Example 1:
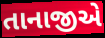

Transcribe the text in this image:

તાનાજીએ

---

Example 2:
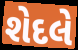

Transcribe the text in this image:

શેદલે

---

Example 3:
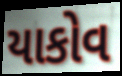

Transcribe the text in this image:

યાકોવ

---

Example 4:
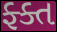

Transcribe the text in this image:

ફ્ક્ત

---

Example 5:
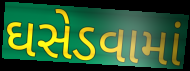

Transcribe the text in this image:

ઘસેડવામાં